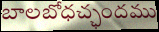
బాలబోధచ్ఛందము